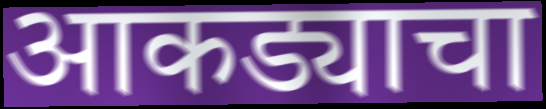
आकड्याचा